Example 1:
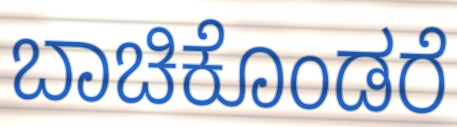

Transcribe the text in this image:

ಬಾಚಿಕೊಂಡರೆ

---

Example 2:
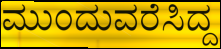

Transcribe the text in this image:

ಮುಂದುವರೆಸಿದ್ದ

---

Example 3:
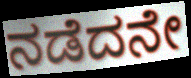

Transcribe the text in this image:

ನಡೆದನೇ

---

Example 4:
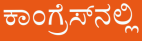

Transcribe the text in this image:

ಕಾಂಗ್ರೆಸ್‌ನಲ್ಲಿ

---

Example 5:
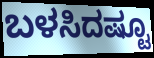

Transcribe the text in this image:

ಬಳಸಿದಷ್ಟೂ